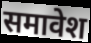
समावेश